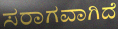
ಸರಾಗವಾಗಿದೆ